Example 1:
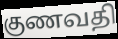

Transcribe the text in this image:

குணவதி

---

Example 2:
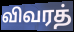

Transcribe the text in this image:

விவரத்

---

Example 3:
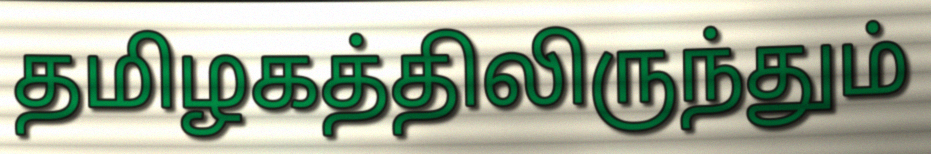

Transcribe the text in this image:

தமிழகத்திலிருந்தும்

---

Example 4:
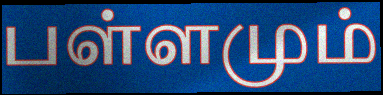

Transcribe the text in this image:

பள்ளமும்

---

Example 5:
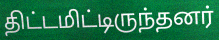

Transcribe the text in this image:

திட்டமிட்டிருந்தனர்